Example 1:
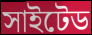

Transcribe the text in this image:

সাইটেড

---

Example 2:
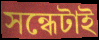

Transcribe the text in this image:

সন্ধেটাই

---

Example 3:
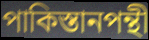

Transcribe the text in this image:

পাকিস্তানপন্থী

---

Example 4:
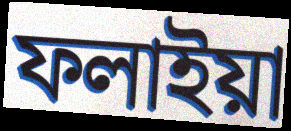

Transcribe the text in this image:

ফলাইয়া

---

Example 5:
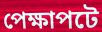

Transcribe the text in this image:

পেক্ষাপটে